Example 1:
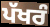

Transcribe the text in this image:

ਪੱਖਰੰ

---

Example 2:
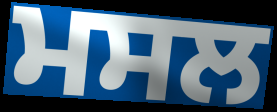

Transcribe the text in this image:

ਮਸਲ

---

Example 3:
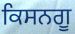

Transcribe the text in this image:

ਕਿਸਨਗੂ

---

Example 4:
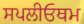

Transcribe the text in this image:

ਸਪਲੀਓਥਮ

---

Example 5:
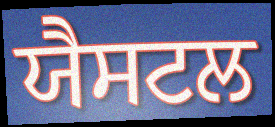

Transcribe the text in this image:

ਯੈਸਟਲ